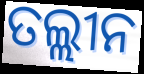
ତଲ୍ଲୀନ